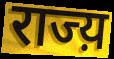
राज्य़